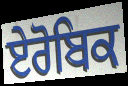
ਏਰੋਬਿਕ